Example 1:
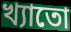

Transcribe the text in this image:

খ্যাতো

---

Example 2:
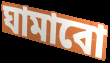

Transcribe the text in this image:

ঘামাবো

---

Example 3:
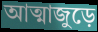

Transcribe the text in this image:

আত্মাজুড়ে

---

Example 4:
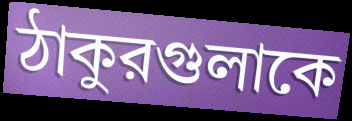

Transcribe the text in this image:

ঠাকুরগুলাকে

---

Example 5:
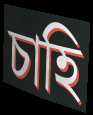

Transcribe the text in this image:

চাহি